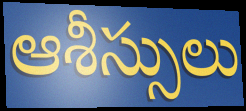
ఆశీస్సులు